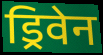
ड्रिवेन